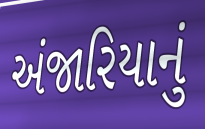
અંજારિયાનું